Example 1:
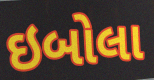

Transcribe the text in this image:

ઇબોલા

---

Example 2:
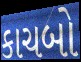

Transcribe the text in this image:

કાચબો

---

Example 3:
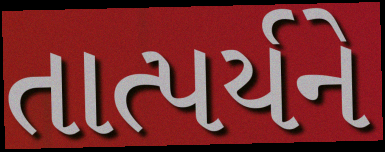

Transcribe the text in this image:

તાત્પર્યને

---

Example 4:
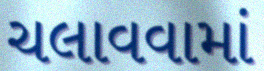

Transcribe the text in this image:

ચલાવવામાં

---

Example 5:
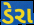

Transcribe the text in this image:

ડેરા